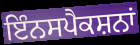
ਇੰਨਸਪੈਕਸ਼ਨਾਂ